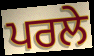
ਪਰਲੇ